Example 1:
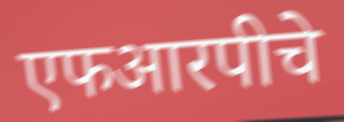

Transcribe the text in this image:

एफआरपीचे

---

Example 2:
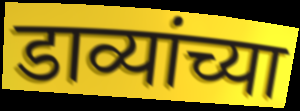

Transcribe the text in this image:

डाव्यांच्या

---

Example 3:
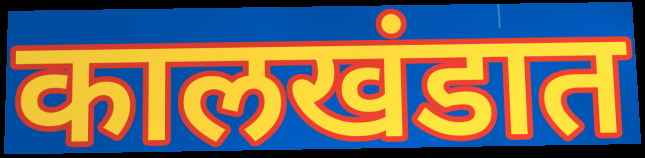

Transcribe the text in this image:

कालखंडात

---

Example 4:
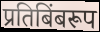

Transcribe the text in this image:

प्रतिबिंबरूप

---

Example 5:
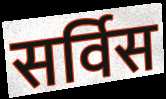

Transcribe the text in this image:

सर्विस